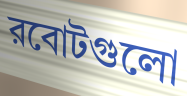
রবোটগুলো